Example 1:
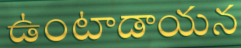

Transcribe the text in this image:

ఉంటాడాయన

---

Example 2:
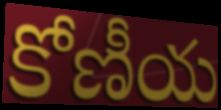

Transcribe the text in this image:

కోణీయ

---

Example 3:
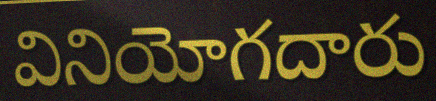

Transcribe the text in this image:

వినియోగదారు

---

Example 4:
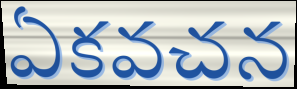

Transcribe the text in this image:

ఏకవచన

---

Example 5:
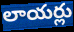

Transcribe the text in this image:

లాయర్లు